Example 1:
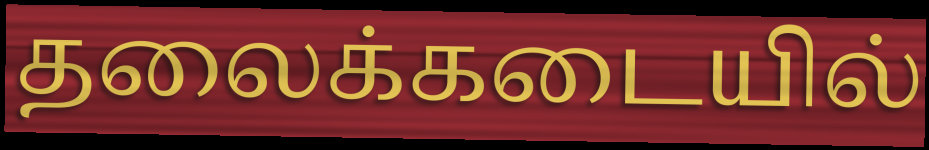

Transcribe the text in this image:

தலைக்கடையில்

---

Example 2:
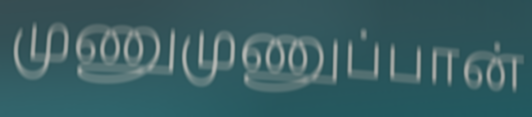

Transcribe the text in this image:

முணுமுணுப்பான்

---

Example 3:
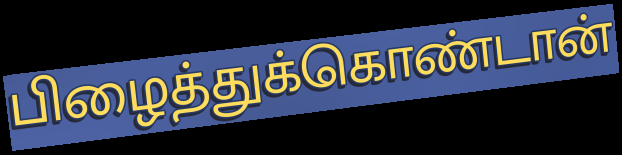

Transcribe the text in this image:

பிழைத்துக்கொண்டான்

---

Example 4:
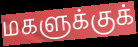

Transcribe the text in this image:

மகளுக்குக்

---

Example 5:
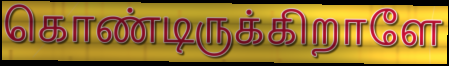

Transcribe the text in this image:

கொண்டிருக்கிறாளே